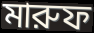
মারুফ